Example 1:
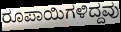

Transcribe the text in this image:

ರೂಪಾಯಿಗಳಿದ್ದವು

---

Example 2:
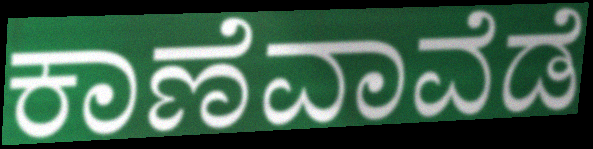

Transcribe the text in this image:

ಕಾಣೆವಾವೆಡೆ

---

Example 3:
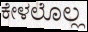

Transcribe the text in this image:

ಕೇಳಲೊಲ್ಲ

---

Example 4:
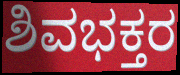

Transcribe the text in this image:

ಶಿವಭಕ್ತರ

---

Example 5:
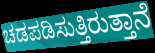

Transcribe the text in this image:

ಚಡಪಡಿಸುತ್ತಿರುತ್ತಾನೆ